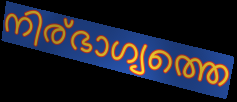
നിര്ഭാഗ്യത്തെ